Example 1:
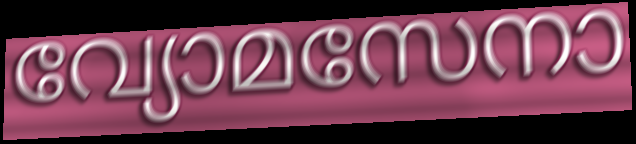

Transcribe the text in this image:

വ്യോമസേനാ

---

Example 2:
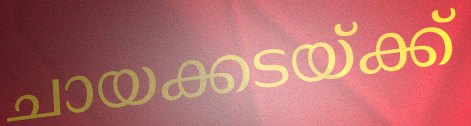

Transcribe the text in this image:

ചായക്കടയ്ക്ക്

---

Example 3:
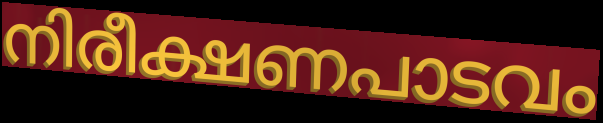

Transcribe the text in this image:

നിരീക്ഷണപാടവം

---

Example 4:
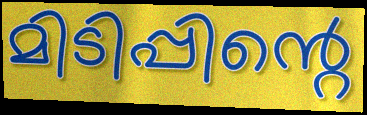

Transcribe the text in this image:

മിടിപ്പിന്റെ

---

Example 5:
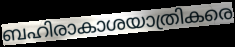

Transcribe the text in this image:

ബഹിരാകാശയാത്രികരെ